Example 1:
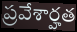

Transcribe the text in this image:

ప్రవేశార్హత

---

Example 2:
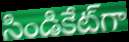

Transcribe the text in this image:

సిండికేట్‌గా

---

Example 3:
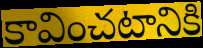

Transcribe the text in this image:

కావించటానికి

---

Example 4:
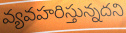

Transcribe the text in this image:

వ్యవహరిస్తున్నదని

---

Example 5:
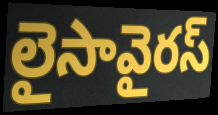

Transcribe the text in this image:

లైసావైరస్